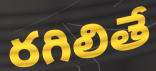
రగిలితే